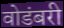
वोडंबरी